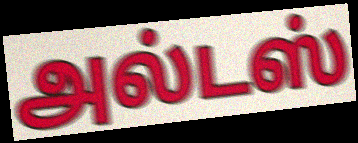
அல்டஸ்